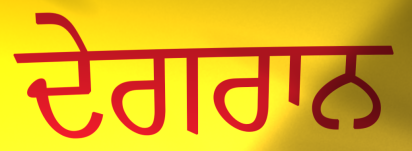
ਦੇਗਰਾਨ